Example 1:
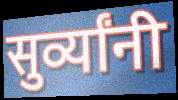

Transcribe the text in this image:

सुर्व्यांनी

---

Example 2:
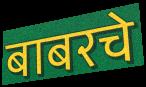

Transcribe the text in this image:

बाबरचे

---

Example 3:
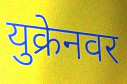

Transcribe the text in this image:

युक्रेनवर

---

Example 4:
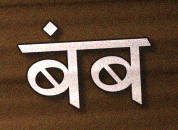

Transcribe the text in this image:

बंब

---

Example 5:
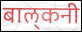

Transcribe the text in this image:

बाल्कनी